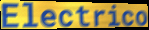
Electrico